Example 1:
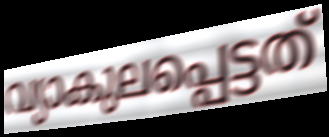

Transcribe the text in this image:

വ്യാകുലപ്പെട്ടത്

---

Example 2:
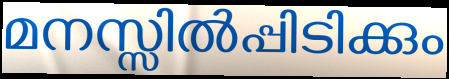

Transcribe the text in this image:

മനസ്സിൽപ്പിടിക്കും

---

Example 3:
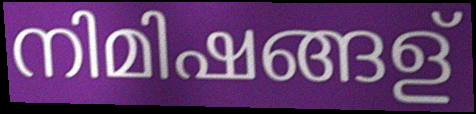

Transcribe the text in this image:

നിമിഷങ്ങള്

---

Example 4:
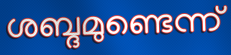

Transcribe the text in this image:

ശബ്ദമുണ്ടെന്ന്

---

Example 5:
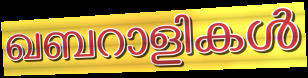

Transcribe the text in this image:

ഖബറാളികൾ